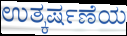
ಉತ್ಕರ್ಷಣೆಯ